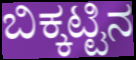
ಬಿಕ್ಕಟ್ಟಿನ